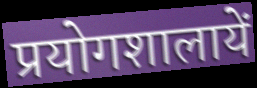
प्रयोगशालायें